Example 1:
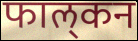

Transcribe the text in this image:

फाल्कन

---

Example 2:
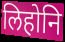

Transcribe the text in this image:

लिहोनि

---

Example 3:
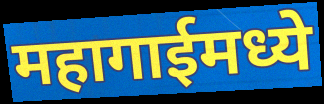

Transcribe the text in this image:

महागाईमध्ये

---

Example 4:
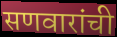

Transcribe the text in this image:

सणवारांची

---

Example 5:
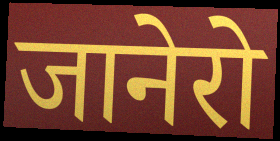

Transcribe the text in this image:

जानेरो